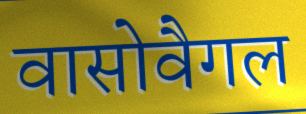
वासोवैगल